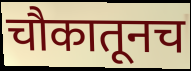
चौकातूनच